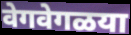
वेगवेगळया